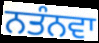
ਨਤੰਨਵਾ